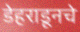
डेहराडूनचे